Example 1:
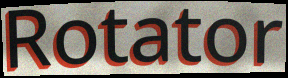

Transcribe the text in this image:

Rotator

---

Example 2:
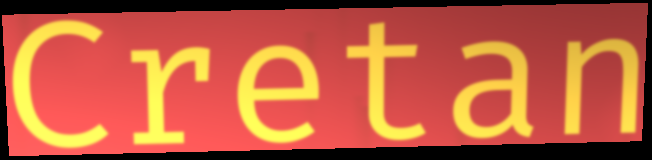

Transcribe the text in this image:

Cretan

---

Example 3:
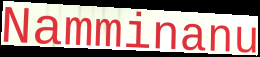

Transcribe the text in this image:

Namminanu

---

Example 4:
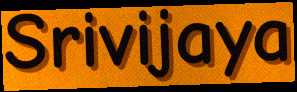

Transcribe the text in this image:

Srivijaya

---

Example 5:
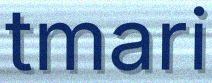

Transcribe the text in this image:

tmari